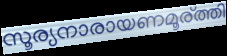
സൂര്യനാരായണമൂര്ത്തി